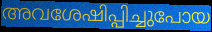
അവശേഷിപ്പിച്ചുപോയ